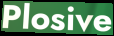
Plosive